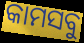
କାମସବୁ